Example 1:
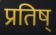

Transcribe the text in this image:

प्रतिष्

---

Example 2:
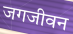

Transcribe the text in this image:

जगजीवन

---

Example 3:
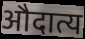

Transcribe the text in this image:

औदात्य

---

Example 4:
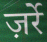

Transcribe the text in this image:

ज़र्रे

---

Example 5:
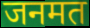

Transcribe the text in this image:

जनमत